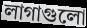
লাগাগুলো